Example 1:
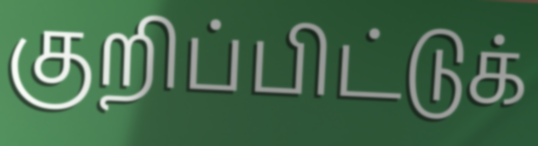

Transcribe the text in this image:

குறிப்பிட்டுக்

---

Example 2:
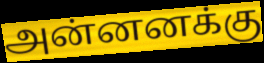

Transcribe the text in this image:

அன்னனக்கு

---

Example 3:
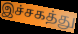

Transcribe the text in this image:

இச்சகத்து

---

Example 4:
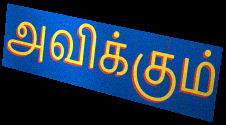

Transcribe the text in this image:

அவிக்கும்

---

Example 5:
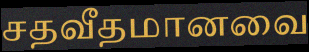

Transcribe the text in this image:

சதவீதமானவை